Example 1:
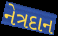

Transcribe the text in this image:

નેત્રદાન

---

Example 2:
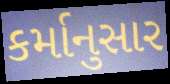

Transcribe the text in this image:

કર્માનુસાર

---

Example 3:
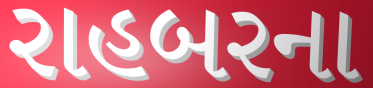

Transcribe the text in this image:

રાહબરના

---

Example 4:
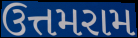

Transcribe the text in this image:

ઉત્તમરામ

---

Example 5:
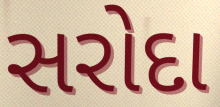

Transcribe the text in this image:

સરોદા